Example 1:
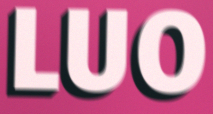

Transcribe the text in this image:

LUO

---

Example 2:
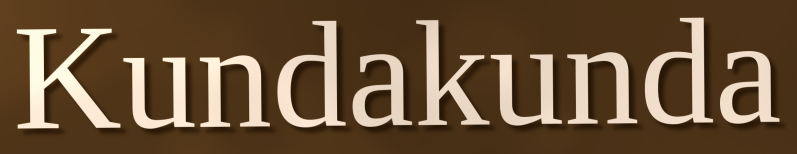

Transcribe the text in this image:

Kundakunda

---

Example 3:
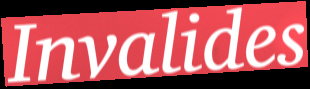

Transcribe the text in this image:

Invalides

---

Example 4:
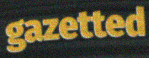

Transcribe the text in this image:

gazetted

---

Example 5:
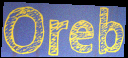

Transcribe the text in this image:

Oreb